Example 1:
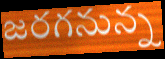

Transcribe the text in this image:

జరగనున్న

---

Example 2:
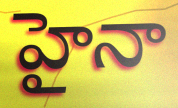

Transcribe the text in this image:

హైనా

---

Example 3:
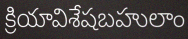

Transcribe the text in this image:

క్రియావిశేషబహులాం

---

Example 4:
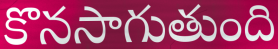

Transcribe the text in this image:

కొనసాగుతుంది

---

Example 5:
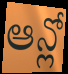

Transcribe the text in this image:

ఆన్లో